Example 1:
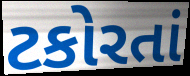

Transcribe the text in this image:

ટકોરતાં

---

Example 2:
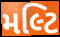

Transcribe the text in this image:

મલ્ટિ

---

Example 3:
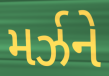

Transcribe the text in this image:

મર્ઝને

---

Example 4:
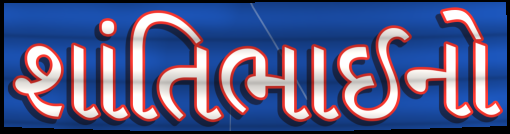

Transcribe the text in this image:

શાંતિભાઈનો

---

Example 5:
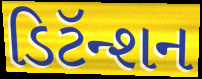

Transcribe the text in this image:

ડિટૅન્શન